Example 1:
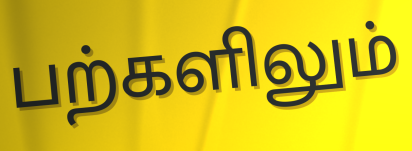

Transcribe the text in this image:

பற்களிலும்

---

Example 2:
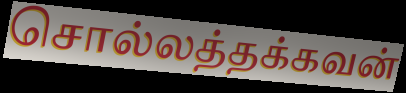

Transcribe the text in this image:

சொல்லத்தக்கவன்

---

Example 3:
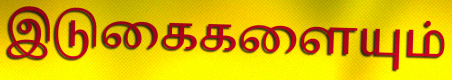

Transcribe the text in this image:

இடுகைகளையும்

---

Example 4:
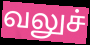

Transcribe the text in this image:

வலுச்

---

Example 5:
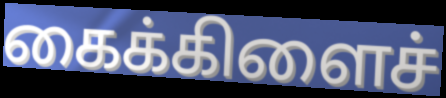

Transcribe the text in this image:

கைக்கிளைச்